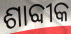
ଶାବ୍ଦୀକ